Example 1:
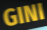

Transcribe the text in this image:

GINI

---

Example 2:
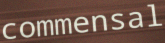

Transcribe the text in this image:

commensal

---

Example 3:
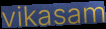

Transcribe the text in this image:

vikasam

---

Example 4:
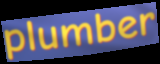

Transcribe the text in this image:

plumber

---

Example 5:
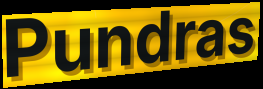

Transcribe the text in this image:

Pundras